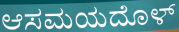
ಆಸಮಯದೊಳ್